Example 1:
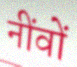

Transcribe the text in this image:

नींवों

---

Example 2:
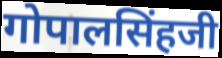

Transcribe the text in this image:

गोपालसिंहजी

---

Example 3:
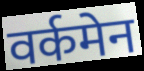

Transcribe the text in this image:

वर्कमेन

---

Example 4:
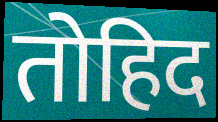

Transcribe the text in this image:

तोहिद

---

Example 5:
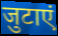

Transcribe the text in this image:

जुटाएं